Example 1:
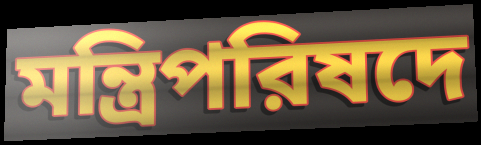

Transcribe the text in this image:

মন্ত্রিপরিষদে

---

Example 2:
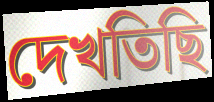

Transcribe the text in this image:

দেখতিছি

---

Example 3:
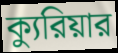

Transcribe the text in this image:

ক্যুরিয়ার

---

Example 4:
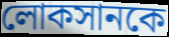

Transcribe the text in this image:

লোকসানকে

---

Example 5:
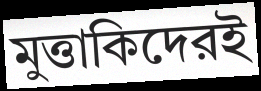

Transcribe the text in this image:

মুত্তাকিদেরই